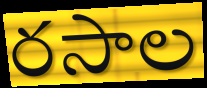
రసాల